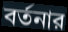
বর্তনার